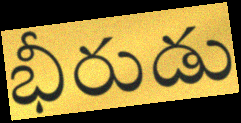
భీరుడు